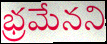
భ్రమేనని